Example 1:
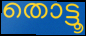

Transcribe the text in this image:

തൊട്ടൂ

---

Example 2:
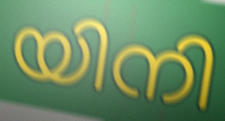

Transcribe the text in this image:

യിനി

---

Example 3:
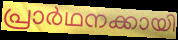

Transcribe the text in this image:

പ്രാർഥനക്കായി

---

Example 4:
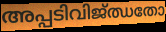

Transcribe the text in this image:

അപ്പടിവിജ്ഝതോ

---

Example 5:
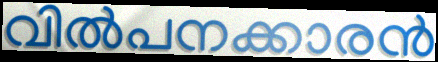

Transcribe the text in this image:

വിൽപനക്കാരൻ